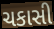
ચકાસી